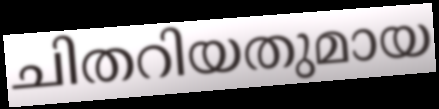
ചിതറിയതുമായ